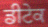
ਡੀਟੇਕ